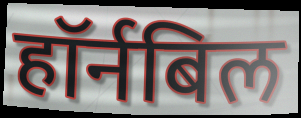
हॉर्नबिल